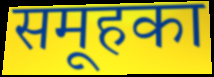
समूहका